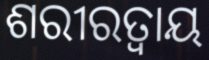
ଶରୀରତ୍ୱାୟ